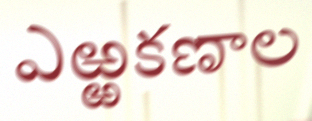
ఎఱ్ఱకణాల